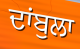
ਦਾਂਬੁਲਾ